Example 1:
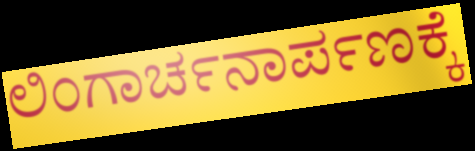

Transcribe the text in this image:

ಲಿಂಗಾರ್ಚನಾರ್ಪಣಕ್ಕೆ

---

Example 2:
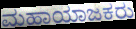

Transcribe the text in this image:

ಮಹಾಯಾಜಕರು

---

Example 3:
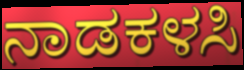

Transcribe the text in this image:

ನಾಡಕಳಸಿ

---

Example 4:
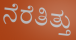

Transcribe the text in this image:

ನೆರೆತಿತ್ತು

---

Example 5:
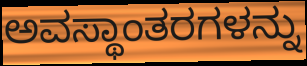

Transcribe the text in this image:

ಅವಸ್ಥಾಂತರಗಳನ್ನು